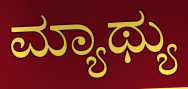
ಮ್ಯಾಥ್ಯು